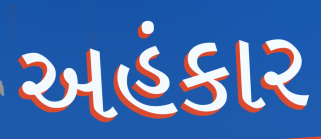
અહંકાર